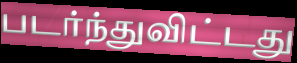
படர்ந்துவிட்டது